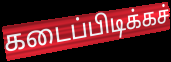
கடைப்பிடிக்கச்